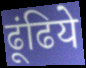
ढूंढिये